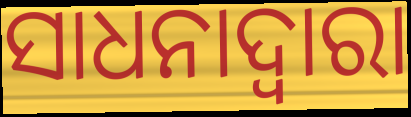
ସାଧନାଦ୍ଵାରା